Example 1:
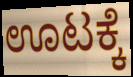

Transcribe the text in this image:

ಊಟಕ್ಕೆ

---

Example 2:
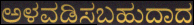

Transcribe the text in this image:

ಅಳವಡಿಸಬಹುದಾದ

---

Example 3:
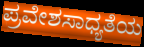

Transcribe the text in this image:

ಪ್ರವೇಶಸಾಧ್ಯತೆಯ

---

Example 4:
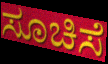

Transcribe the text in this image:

ಸೂಚಿಸೆ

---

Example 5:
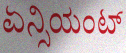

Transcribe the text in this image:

ಏನ್ಸಿಯಂಟ್